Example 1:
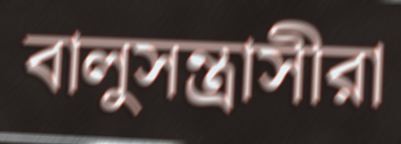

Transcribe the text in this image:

বালুসন্ত্রাসীরা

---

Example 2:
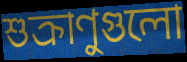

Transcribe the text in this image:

শুক্রাণুগুলো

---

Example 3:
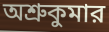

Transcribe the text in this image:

অশ্রুকুমার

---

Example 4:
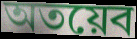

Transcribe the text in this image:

অতয়েব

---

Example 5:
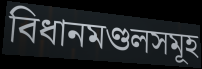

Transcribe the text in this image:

বিধানমণ্ডলসমূহ